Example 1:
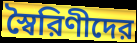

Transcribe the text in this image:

স্বৈরিণীদের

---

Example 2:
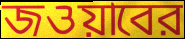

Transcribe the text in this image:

জওয়াবের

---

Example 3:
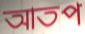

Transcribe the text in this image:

আতপ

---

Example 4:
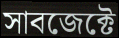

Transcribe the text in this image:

সাবজেক্টে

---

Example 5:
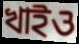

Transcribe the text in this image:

খাইও